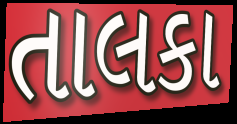
તાલકા